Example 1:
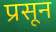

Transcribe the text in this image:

प्रसून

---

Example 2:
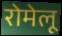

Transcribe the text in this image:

रोमेलू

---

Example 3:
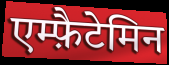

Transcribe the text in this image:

एम्फ़ैटेमिन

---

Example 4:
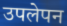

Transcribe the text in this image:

उपलेपन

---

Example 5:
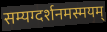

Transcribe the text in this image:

सम्यग्दर्शनमस्मयम्